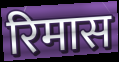
रिमास